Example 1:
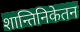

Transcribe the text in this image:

शान्तिनिकेतन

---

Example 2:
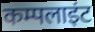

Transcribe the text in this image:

कम्पलाइंट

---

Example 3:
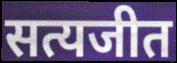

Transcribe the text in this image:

सत्यजीत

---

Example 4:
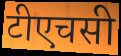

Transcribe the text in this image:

टीएचसी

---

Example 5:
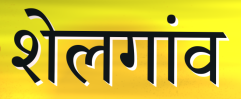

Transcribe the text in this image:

शेलगांव